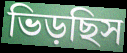
ভিড়ছিস